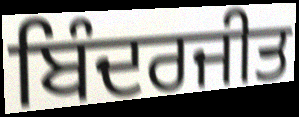
ਬਿੰਦਰਜੀਤ